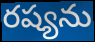
రష్యను